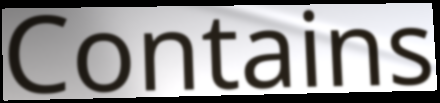
Contains